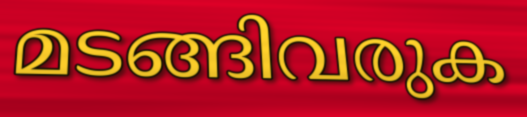
മടങ്ങിവരുക